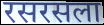
रसरसला